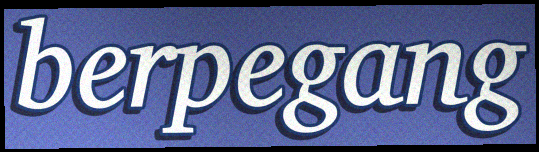
berpegang